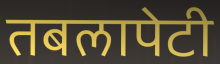
तबलापेटी